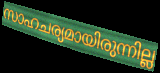
സാഹചര്യമായിരുന്നില്ല